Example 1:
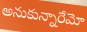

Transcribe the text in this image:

అనుకున్నారేమో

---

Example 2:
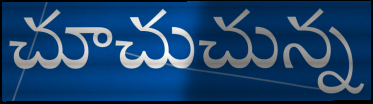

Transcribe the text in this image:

చూచుచున్న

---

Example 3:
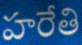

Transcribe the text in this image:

హరేతి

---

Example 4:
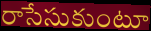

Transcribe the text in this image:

రాసేసుకుంటూ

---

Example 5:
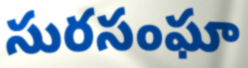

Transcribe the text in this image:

సురసంఘా